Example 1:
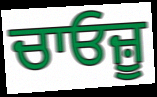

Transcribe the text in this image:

ਚਾਓਜ਼ੂ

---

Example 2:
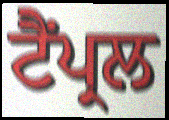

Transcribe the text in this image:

ਟੈਂਪ੍ਰਲ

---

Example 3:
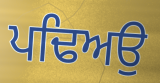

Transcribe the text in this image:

ਪਢਿਅਉ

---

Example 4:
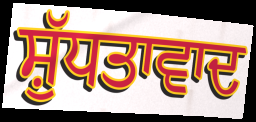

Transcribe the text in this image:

ਸ਼ੁੱਧਤਾਵਾਦ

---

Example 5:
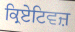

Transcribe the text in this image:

ਕ੍ਰਿਏਟਿਵਜ਼